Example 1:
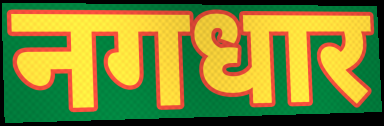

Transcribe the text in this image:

नगधार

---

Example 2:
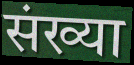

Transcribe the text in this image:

संख्‍या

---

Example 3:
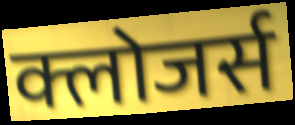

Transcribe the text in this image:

क्लोजर्स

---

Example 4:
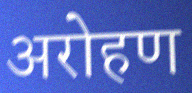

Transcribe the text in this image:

अरोहण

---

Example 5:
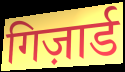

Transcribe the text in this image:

गिज़ार्ड